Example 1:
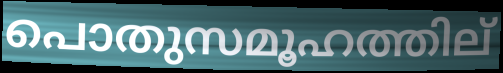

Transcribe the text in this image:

പൊതുസമൂഹത്തില്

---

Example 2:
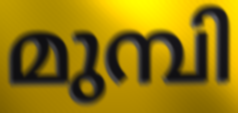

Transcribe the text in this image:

മുമ്പി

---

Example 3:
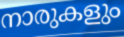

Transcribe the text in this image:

നാരുകളും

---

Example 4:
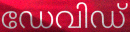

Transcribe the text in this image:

ഡേവിഡ്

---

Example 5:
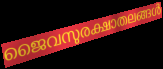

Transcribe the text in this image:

ജൈവസുരക്ഷാതലങ്ങൾ